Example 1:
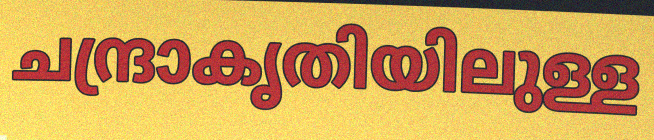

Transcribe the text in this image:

ചന്ദ്രാകൃതിയിലുള്ള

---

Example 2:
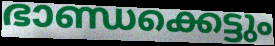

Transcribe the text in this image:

ഭാണ്ഡക്കെട്ടും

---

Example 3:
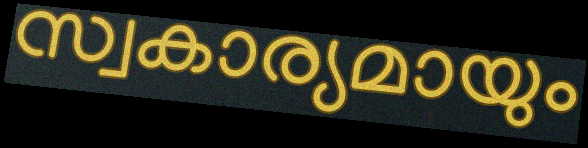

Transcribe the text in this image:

സ്വകാര്യമായും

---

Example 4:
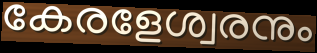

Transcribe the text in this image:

കേരളേശ്വരനും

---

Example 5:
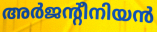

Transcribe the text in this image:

അർജന്റീനിയൻ